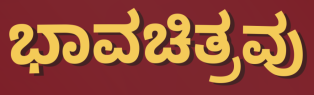
ಭಾವಚಿತ್ರವು